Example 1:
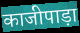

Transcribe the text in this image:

काजीपाड़ा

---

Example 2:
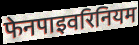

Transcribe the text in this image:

फेनपाइवरिनियम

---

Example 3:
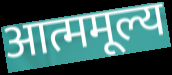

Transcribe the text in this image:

आत्ममूल्य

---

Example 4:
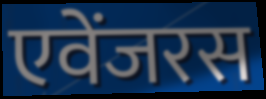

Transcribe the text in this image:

एवेंजरस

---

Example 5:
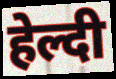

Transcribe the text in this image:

हेल्दी